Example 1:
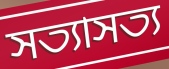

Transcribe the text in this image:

সত্যাসত্য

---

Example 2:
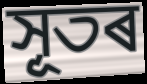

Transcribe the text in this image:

সূতৰ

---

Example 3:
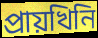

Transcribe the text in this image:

প্ৰায়খিনি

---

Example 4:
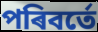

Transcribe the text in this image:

পৰিবৰ্তে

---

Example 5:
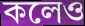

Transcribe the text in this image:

কলেও